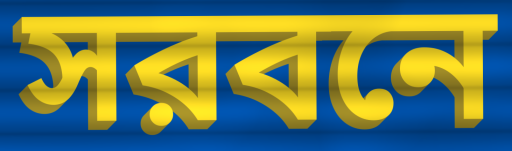
সরবনে